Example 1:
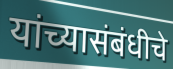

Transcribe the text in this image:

यांच्यासंबंधीचे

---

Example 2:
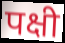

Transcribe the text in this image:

पक्षी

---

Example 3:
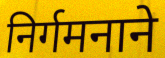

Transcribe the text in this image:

निर्गमनाने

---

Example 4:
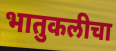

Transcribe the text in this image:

भातुकलीचा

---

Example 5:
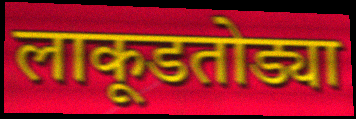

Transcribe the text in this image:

लाकूडतोड्या